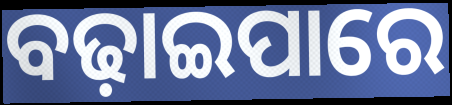
ବଢ଼ାଇପାରେ